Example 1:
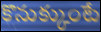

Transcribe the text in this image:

కొనుక్కుంటే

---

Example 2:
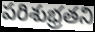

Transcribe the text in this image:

పరిశుభ్రతని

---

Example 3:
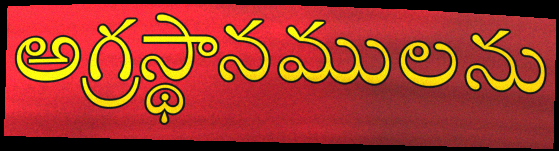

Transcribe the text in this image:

అగ్రస్థానములను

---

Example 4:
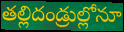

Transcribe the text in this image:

తల్లిదండ్రుల్లోనూ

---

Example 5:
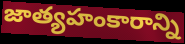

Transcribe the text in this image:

జాత్యహంకారాన్ని